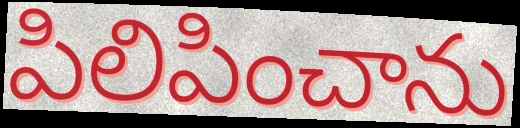
పిలిపించాను